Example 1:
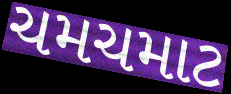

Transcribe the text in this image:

ચમચમાટ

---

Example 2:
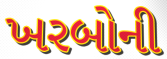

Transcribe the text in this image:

ખરબોની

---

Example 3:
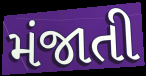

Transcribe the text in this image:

મંજાતી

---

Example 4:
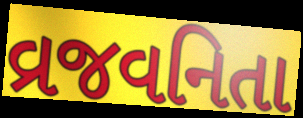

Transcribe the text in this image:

વ્રજવનિતા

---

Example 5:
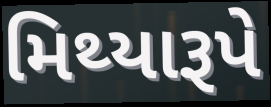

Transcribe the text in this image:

મિથ્યારૂપે